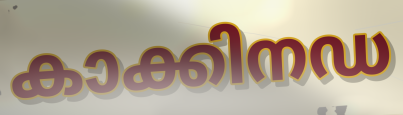
കാക്കിനഡ